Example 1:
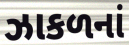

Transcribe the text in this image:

ઝાકળનાં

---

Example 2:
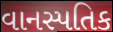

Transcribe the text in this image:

વાનસ્પતિક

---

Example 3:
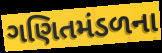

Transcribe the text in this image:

ગણિતમંડળના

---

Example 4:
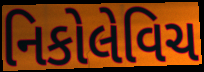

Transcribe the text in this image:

નિકોલેવિચ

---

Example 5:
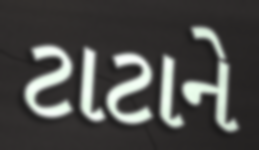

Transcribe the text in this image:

ટાટાને